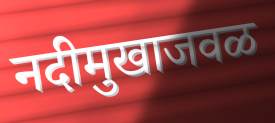
नदीमुखाजवळ